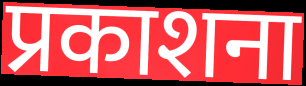
प्रकाशना